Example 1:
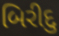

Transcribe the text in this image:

બિરીદુ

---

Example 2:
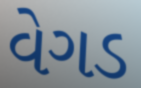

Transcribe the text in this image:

વેગડ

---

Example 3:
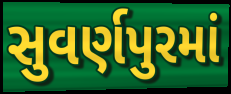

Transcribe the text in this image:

સુવર્ણપુરમાં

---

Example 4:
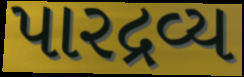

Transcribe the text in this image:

પારદ્રવ્ય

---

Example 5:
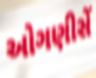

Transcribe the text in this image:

ઓગણીસેં